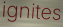
ignites